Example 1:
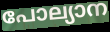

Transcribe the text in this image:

പോല്യാന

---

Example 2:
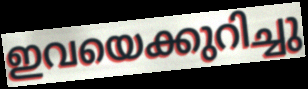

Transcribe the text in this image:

ഇവയെക്കുറിച്ചു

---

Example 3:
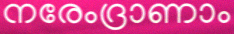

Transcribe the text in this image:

നരേംദ്രാണാം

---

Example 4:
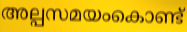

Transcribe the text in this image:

അല്പസമയംകൊണ്ട്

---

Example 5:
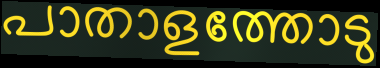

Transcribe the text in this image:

പാതാളത്തോടു